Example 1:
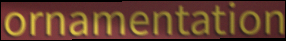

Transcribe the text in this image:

ornamentation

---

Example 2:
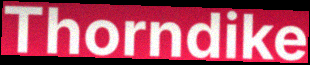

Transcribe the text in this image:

Thorndike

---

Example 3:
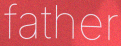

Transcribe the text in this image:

father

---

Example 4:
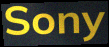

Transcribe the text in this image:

Sony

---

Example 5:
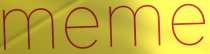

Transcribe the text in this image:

meme